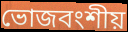
ভোজবংশীয়